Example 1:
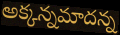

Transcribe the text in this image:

అక్కన్నమాదన్న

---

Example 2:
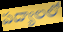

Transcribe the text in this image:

పద్యాలలో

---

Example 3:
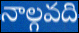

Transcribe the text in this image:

నాల్గవది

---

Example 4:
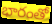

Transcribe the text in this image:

భారంతో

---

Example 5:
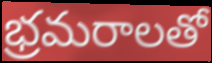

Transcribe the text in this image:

భ్రమరాలతో